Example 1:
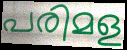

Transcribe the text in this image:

പരിമള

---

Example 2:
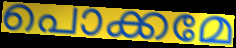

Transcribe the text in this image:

പൊക്കമേ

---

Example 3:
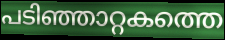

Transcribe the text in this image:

പടിഞ്ഞാറ്റകത്തെ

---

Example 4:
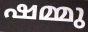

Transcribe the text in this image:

ഷമ്മു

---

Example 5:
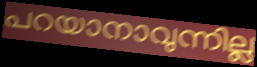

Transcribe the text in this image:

പറയാനാവുന്നില്ല